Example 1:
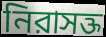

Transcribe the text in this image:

নিরাসক্ত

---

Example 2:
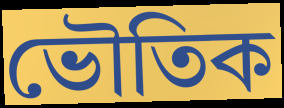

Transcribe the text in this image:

ভৌতিক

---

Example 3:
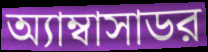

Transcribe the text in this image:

অ্যাম্বাসাডর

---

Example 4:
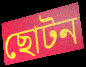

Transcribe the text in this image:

ছোটন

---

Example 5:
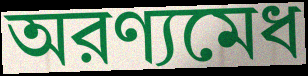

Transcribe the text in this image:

অরণ্যমেধ